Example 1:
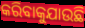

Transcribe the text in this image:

କରିବାକୁଯାଉଛି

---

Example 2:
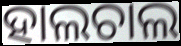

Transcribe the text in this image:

ହାଲଚାଲ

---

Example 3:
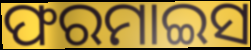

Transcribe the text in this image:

ଫରମାଇସ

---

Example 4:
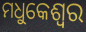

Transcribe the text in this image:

ମଧୁକେଶ୍ୱର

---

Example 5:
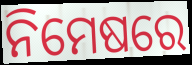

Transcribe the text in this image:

ନିମେଷରେ